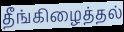
தீங்கிழைத்தல்